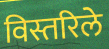
विस्तरिले